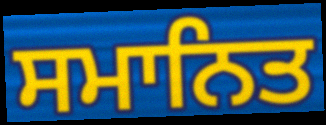
ਸਮਾਨਿਤ